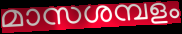
മാസശമ്പളം